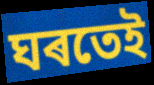
ঘৰতেই